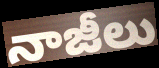
నాజీలు